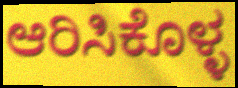
ಆರಿಸಿಕೊಳ್ಳ